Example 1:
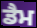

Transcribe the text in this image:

ਡੈਮ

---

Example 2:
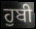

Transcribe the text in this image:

ਹੁਬੀ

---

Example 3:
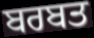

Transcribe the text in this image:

ਬਰਬਤ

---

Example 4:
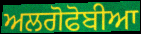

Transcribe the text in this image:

ਅਲਗੋਫੋਬੀਆ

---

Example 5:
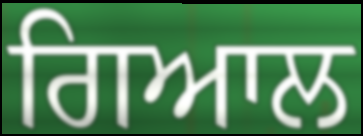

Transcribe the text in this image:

ਗਿਆਲ